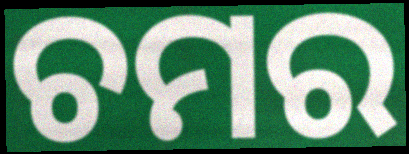
ଚମର